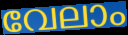
വേലാം